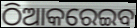
ଠିଆକରେଇବ